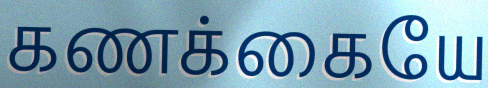
கணக்கையே